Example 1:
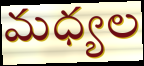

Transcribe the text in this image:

మధ్యల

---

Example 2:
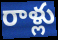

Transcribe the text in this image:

రాళ్లు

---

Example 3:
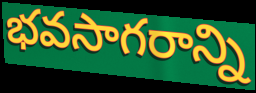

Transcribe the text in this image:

భవసాగరాన్ని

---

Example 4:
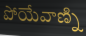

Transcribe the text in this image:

పోయేవాణ్ని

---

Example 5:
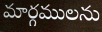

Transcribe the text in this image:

మార్గములను